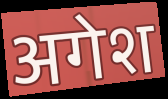
अगेश